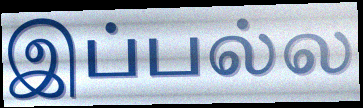
இப்பல்ல